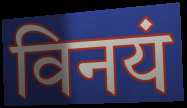
विनयं